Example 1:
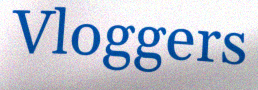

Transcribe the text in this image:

Vloggers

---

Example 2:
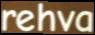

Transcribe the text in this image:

rehva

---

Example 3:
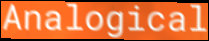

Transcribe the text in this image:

Analogical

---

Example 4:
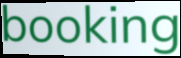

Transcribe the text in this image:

booking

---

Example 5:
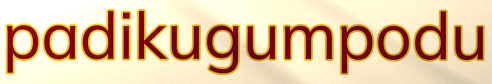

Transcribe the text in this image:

padikugumpodu